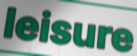
leisure